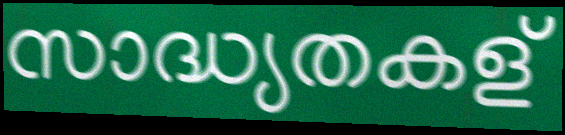
സാദ്ധ്യതകള്